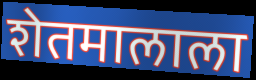
शेतमालाला